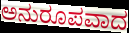
ಅನುರೂಪವಾದ